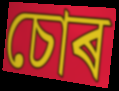
চোৰ